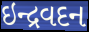
ઇન્દ્રવદન